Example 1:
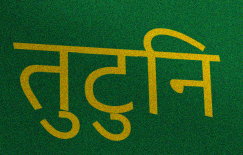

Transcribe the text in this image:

तुटुनि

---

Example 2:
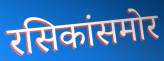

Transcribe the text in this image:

रसिकांसमोर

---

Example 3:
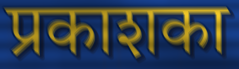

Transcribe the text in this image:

प्रकाशका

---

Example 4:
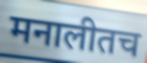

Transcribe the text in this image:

मनालीतच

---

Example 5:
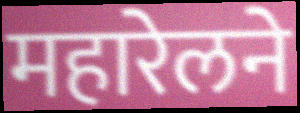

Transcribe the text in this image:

महारेलने